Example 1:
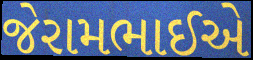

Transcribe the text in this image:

જેરામભાઈએ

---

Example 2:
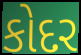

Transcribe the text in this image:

કોદર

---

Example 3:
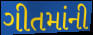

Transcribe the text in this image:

ગીતમાંની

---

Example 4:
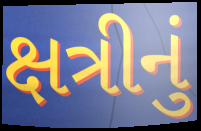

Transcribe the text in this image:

ક્ષત્રીનું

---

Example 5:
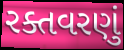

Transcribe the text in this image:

રક્તવરણું